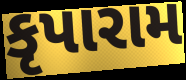
કૃપારામ